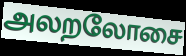
அலறலோசை